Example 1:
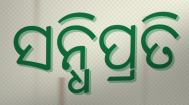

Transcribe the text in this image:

ସନ୍ଧିପ୍ରତି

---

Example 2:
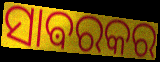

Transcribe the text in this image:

ସାଵରକର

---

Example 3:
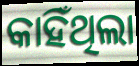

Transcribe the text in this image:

କାହିଁଥିଲା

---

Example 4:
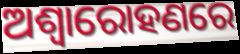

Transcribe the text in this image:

ଅଶ୍ୱାରୋହଣରେ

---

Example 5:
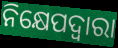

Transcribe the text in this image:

ନିକ୍ଷେପଦ୍ୱାରା